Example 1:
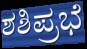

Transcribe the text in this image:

ಶಶಿಪ್ರಭೆ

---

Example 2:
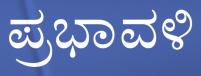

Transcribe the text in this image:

ಪ್ರಭಾವಳಿ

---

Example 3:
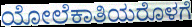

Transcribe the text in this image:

ಯೋಲೆಕಾತಿಯರೊಳಗೆ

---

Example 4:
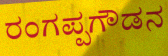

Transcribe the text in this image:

ರಂಗಪ್ಪಗೌಡನ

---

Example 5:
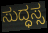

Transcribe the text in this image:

ಸುದ್ಧಸ್ಸ